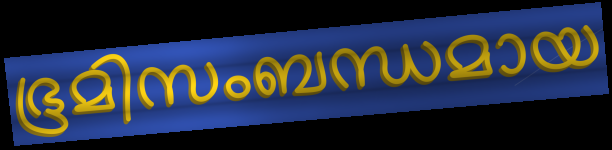
ഭൂമിസംബന്ധമായ